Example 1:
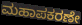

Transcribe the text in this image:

ಮಹಾಪಕರಣೇ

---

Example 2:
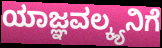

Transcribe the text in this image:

ಯಾಜ್ಞವಲ್ಕ್ಯನಿಗೆ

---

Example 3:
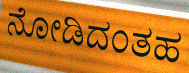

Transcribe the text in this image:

ನೋಡಿದಂತಹ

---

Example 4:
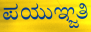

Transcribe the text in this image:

ಪಯುಞ್ಜತಿ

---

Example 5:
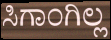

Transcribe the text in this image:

ಸಿಗಾಂಗಿಲ್ಲ